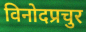
विनोदप्रचुर